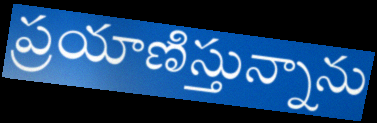
ప్రయాణిస్తున్నాను